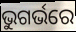
ଭୁଗର୍ଭରେ